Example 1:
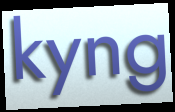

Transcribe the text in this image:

kyng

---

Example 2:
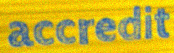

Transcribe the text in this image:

accredit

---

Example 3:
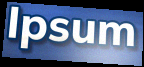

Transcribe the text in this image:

Ipsum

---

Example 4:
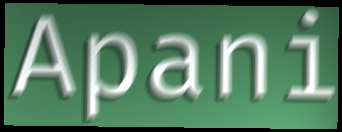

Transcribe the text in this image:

Apani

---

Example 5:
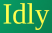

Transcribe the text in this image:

Idly